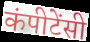
कंपीटेंसी